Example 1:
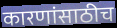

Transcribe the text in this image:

कारणांसाठीच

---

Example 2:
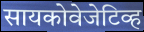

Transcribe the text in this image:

सायकोवेजेटिव्ह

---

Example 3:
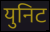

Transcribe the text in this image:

युनिट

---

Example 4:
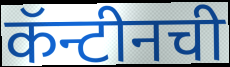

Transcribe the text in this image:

कॅन्टीनची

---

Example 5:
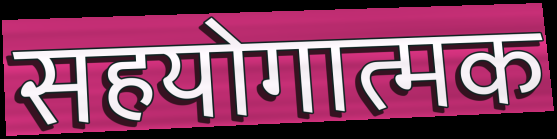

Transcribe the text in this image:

सहयोगात्मक